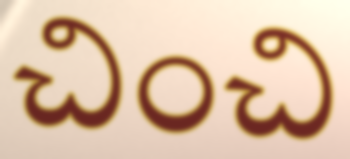
చించి